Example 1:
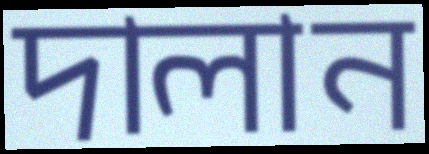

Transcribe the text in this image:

দালান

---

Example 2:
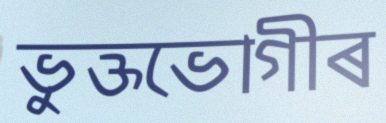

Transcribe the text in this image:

ভুক্তভোগীৰ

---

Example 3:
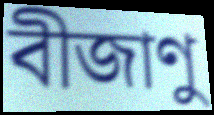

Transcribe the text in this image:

বীজাণু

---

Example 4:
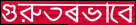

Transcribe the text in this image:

গুৰুতৰভাবে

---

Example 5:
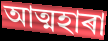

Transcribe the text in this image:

আত্মহাৰা